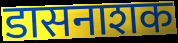
डासनाशक